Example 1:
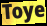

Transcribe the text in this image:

Toye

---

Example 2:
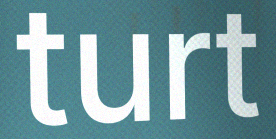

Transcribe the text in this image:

turt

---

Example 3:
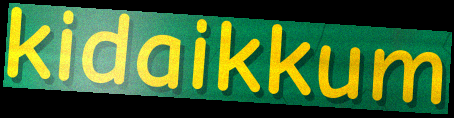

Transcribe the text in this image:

kidaikkum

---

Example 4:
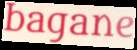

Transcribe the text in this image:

bagane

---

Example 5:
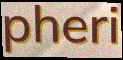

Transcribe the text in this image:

pheri